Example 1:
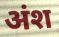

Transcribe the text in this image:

अंश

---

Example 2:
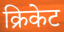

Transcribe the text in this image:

क्रिकेट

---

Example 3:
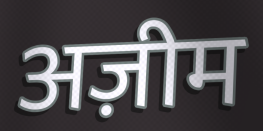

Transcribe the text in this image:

अज़ीम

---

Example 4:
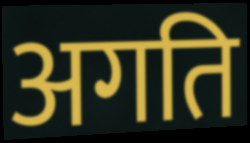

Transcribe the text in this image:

अगति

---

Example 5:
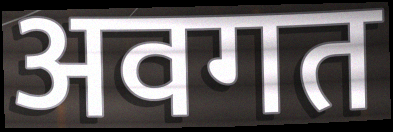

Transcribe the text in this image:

अवगत